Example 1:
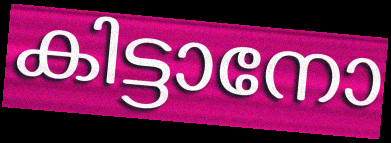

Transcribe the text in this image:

കിട്ടാനോ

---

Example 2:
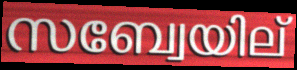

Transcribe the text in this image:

സബ്വേയില്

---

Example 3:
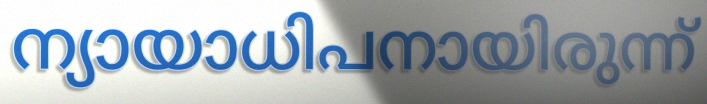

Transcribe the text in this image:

ന്യായാധിപനായിരുന്ന്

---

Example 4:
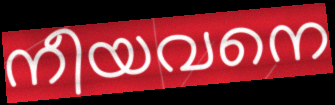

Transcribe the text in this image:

നീയവനെ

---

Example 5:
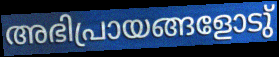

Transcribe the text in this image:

അഭിപ്രായങ്ങളോടു്